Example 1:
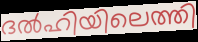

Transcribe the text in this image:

ദൽഹിയിലെത്തി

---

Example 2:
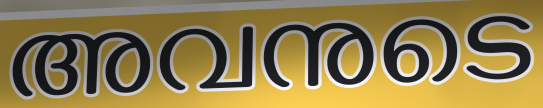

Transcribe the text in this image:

അവനുടെ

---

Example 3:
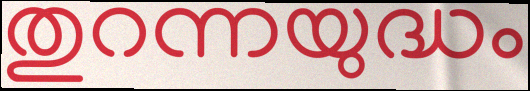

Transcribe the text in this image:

തുറന്നയുദ്ധം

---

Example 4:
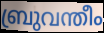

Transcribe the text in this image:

ബ്രുവന്തീം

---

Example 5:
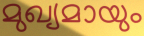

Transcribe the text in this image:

മുഖ്യമായും